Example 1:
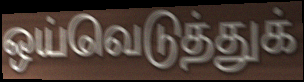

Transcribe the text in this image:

ஒய்வெடுத்துக்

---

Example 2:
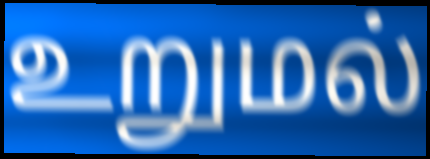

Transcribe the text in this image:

உறுமல்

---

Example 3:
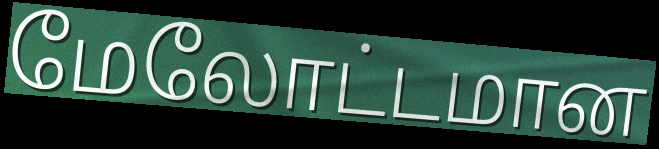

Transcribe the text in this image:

மேலோட்டமான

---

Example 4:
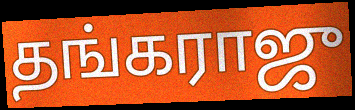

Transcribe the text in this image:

தங்கராஜு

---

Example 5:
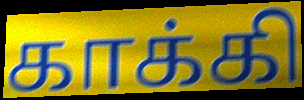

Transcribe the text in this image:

காக்கி